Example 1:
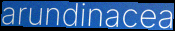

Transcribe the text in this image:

arundinacea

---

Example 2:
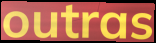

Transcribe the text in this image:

outras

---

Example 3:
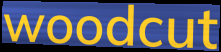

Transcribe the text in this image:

woodcut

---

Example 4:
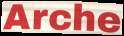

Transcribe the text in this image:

Arche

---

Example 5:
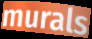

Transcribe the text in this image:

murals